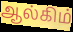
ஆல்கிம்